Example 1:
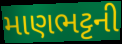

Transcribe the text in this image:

માણભટ્ટની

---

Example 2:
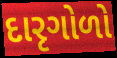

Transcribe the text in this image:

દારૃગોળો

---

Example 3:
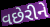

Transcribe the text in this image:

વછેરીને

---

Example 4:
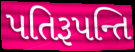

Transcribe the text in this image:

પતિરૂપન્તિ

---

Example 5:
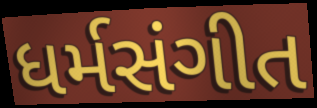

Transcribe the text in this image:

ધર્મસંગીત